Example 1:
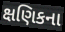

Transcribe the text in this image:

ક્ષણિકના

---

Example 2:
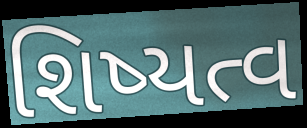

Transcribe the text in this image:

શિષ્યત્વ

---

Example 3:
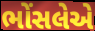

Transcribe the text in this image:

ભોંસલેએ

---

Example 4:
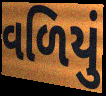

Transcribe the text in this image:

વળિયું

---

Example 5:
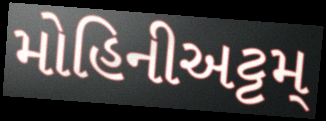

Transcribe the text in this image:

મોહિનીઅટ્ટમ્